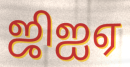
ஜிஐஏ